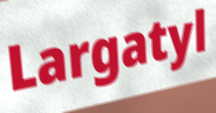
Largatyl